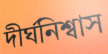
দীর্ঘনিশ্বাস